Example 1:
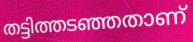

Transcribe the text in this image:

തട്ടിത്തടഞ്ഞതാണ്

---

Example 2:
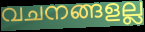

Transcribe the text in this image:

വചനങ്ങളല്ല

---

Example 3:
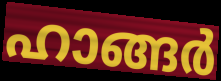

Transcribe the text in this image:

ഹാങ്ങർ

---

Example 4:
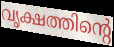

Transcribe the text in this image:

വൃക്ഷത്തിന്റെ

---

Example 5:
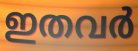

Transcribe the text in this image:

ഇതവർ